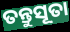
ତନ୍ତୁସୂତା